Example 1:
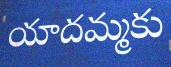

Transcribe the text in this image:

యాదమ్మకు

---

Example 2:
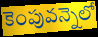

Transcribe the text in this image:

కెంపువన్నెలో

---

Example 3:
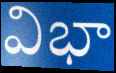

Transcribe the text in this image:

విభా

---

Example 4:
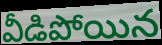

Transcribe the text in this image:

వీడిపోయిన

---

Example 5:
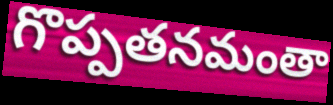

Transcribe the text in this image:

గొప్పతనమంతా